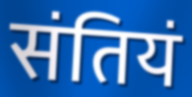
संतियं